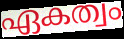
ഏകത്വം